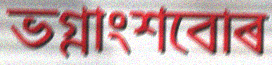
ভগ্নাংশবোৰ